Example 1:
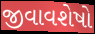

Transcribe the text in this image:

જીવાવશેષો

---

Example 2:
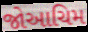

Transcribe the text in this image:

જોઆચિમ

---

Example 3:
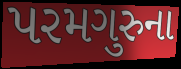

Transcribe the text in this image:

પરમગુરુના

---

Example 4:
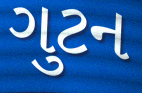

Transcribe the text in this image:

ગુટન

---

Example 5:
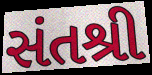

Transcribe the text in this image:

સંતશ્રી